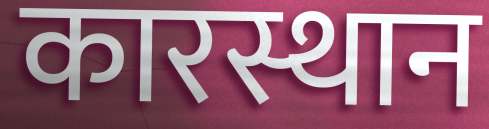
कारस्थान